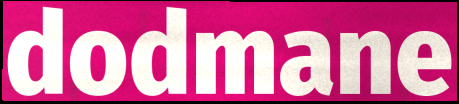
dodmane